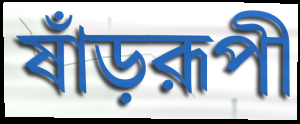
ষাঁড়রূপী